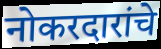
नोकरदारांचे